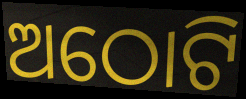
ଅଠୋଟି